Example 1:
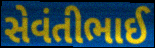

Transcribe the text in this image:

સેવંતીભાઈ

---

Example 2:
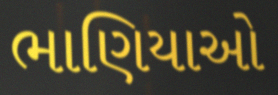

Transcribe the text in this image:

ભાણિયાઓ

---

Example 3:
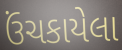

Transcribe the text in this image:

ઉંચકાયેલા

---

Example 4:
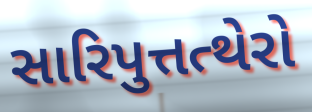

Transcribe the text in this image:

સારિપુત્તત્થેરો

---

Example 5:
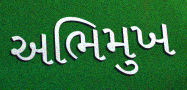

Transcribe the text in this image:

અભિમુખ